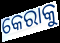
କେରାକୁ